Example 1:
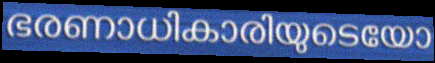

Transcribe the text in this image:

ഭരണാധികാരിയുടെയോ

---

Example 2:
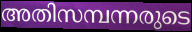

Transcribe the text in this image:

അതിസമ്പന്നരുടെ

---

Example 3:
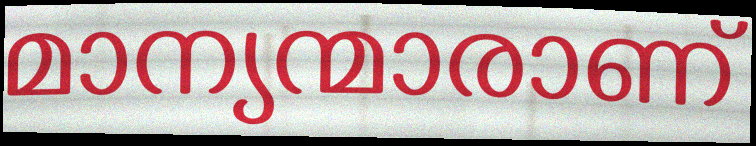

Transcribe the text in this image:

മാന്യന്മാരാണ്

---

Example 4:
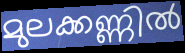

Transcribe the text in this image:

മുലക്കണ്ണിൽ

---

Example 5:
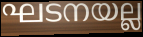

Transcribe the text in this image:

ഘടനയല്ല